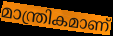
മാന്ത്രികമാണ്